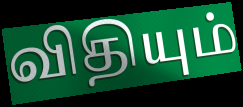
விதியும்